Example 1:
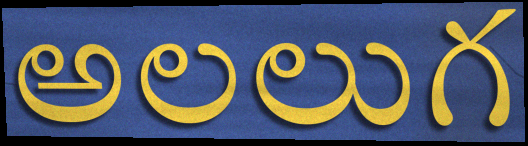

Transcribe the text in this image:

అలలుగ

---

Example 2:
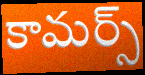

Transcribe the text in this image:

కామర్స్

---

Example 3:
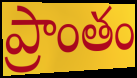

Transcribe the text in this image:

ప్రాంతం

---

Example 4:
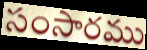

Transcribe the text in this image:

సంసారము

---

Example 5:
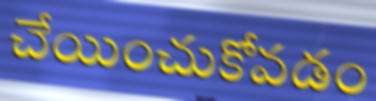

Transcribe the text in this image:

చేయించుకోవడం